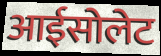
आईसोलेट